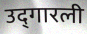
उद्‌गारली